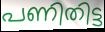
പണിതിട്ട